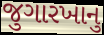
જુગારખાનુ